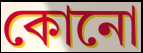
কোনো